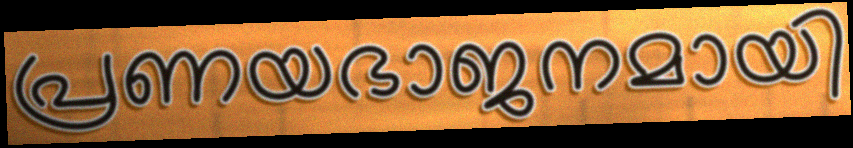
പ്രണയഭാജനമായി